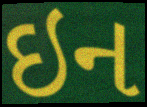
ઇન